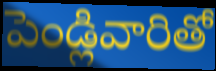
పెండ్లివారితో